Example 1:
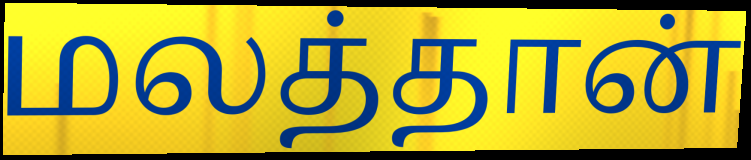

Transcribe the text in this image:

மலத்தான்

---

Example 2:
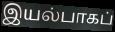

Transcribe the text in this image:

இயல்பாகப்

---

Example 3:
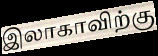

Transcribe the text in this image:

இலாகாவிற்கு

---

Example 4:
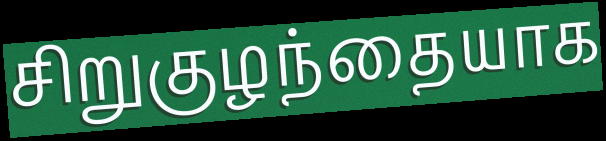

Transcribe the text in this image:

சிறுகுழந்தையாக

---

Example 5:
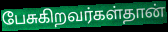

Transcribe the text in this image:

பேசுகிறவர்கள்தான்